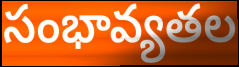
సంభావ్యతల